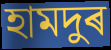
হামদুৰ